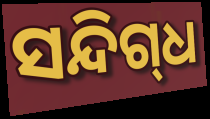
ସନ୍ଦିଗ୍‌ଧ